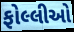
ફોલ્લીઓ